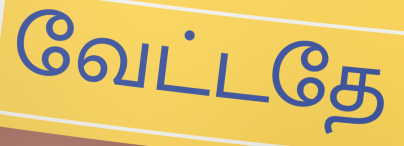
வேட்டதே